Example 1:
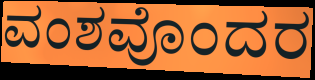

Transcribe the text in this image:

ವಂಶವೊಂದರ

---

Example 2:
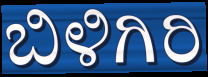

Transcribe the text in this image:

ಬಿಳಿಗಿರಿ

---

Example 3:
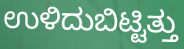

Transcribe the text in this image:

ಉಳಿದುಬಿಟ್ಟಿತ್ತು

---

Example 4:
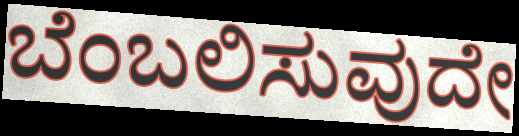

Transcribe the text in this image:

ಬೆಂಬಲಿಸುವುದೇ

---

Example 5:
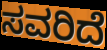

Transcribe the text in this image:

ಸವರಿದೆ